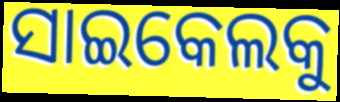
ସାଇକେଲକୁ